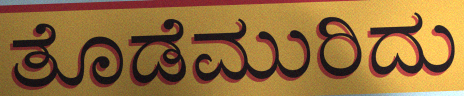
ತೊಡೆಮುರಿದು